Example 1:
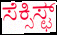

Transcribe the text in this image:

ಸೆಕ್ಸಿಸ್ಟ್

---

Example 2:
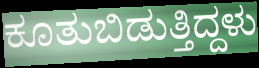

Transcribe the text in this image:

ಕೂತುಬಿಡುತ್ತಿದ್ದಳು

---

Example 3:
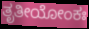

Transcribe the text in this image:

ತೃತೀಯೋಂಕಃ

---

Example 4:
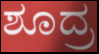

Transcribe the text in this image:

ಶೂದ್ರ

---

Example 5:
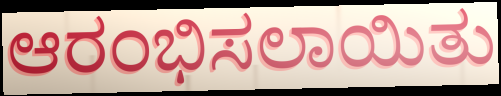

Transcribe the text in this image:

ಆರಂಭಿಸಲಾಯಿತು